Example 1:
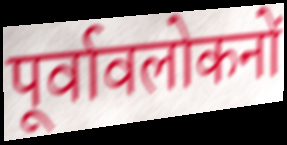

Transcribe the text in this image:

पूर्वावलोकनों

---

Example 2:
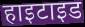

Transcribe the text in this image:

हाइटाइड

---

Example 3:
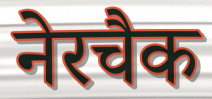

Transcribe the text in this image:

नेरचैक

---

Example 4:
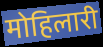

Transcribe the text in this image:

मोहिलारी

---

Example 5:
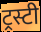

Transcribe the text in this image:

ट्रस्टी